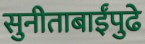
सुनीताबाईंपुढे